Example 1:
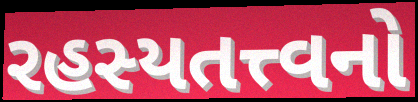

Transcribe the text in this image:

રહસ્યતત્ત્વનો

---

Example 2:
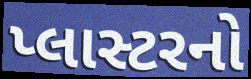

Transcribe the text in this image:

પ્લાસ્ટરનો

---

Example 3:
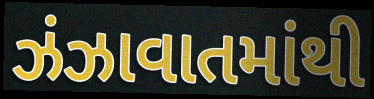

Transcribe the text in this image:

ઝંઝાવાતમાંથી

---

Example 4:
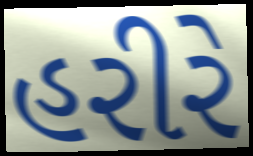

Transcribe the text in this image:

હરીરે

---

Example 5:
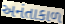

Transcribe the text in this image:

અનંતાકાળ